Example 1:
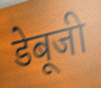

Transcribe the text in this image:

डेबूजी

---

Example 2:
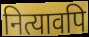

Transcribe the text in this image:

नित्यावपि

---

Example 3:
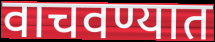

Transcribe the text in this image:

वाचवण्यात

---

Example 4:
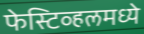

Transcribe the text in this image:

फेस्टिव्हलमध्ये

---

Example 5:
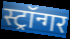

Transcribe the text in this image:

स्ट्रॉन्गर